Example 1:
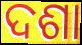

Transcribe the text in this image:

ଦଶା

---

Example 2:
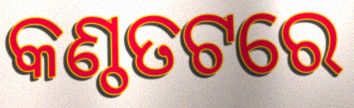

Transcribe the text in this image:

କଣ୍ଠତଟରେ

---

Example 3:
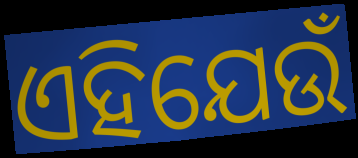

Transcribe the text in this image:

ଏହିଯେଉଁ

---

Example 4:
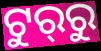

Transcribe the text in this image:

ଟୁର୍‍ରୁ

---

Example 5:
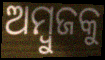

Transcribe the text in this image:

ଅମ୍ବୁଜକୁ